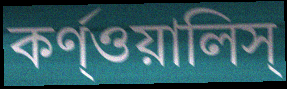
কর্ণ্ওয়ালিস্